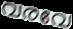
വരവേ